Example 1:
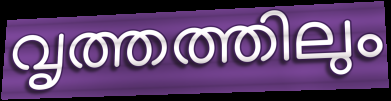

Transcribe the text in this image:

വൃത്തത്തിലും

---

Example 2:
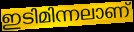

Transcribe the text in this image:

ഇടിമിന്നലാണ്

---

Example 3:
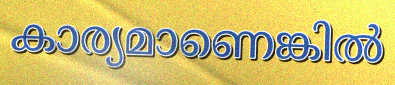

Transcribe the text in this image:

കാര്യമാണെങ്കിൽ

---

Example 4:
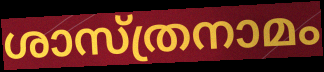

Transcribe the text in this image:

ശാസ്ത്രനാമം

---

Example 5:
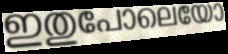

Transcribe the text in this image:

ഇതുപോലെയോ